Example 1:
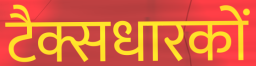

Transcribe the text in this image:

टैक्सधारकों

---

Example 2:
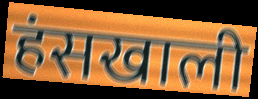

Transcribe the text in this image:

हंसखाली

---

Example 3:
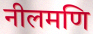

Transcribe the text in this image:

नीलमणि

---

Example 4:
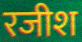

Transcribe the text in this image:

रजीश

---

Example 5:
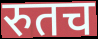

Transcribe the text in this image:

रुतच